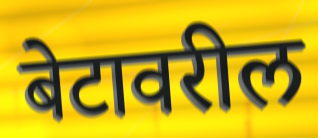
बेटावरील